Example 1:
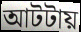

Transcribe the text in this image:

আটটায়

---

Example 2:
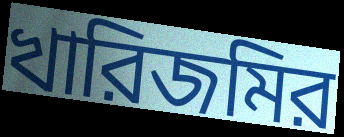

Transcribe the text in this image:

খারিজমির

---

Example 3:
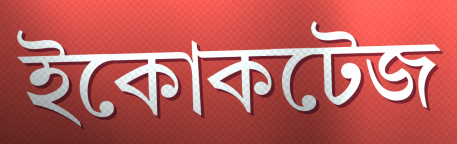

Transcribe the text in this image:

ইকোকটেজ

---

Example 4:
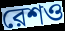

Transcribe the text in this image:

রেশও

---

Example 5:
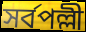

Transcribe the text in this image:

সর্বপল্লী